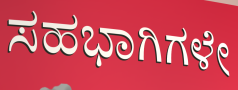
ಸಹಭಾಗಿಗಳೇ